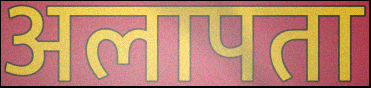
अलापता